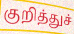
குறித்துச்